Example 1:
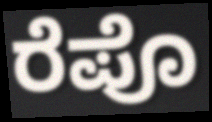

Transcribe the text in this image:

ರೆಪೊ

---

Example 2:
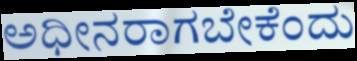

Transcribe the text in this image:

ಅಧೀನರಾಗಬೇಕೆಂದು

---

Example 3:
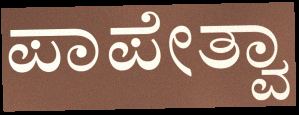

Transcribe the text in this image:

ಪಾಪೇತ್ವಾ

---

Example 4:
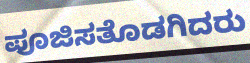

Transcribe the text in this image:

ಪೂಜಿಸತೊಡಗಿದರು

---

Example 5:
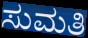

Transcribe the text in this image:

ಸುಮತಿ